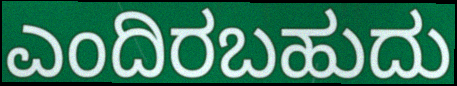
ಎಂದಿರಬಹುದು